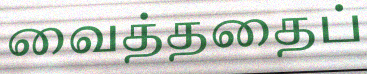
வைத்ததைப்